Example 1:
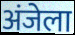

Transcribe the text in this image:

अंजेला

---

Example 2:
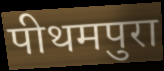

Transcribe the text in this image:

पीथमपुरा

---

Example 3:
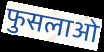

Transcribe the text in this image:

फुसलाओ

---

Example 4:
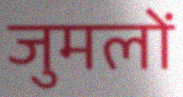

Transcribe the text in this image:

जुमलों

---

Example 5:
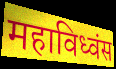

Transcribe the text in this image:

महाविध्वंस